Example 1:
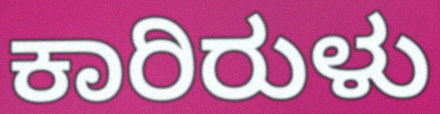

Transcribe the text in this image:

ಕಾರಿರುಳು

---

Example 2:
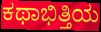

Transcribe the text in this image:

ಕಥಾಭಿತ್ತಿಯ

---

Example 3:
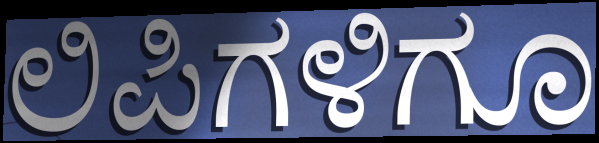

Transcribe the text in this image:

ಲಿಪಿಗಳಿಗೂ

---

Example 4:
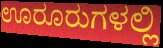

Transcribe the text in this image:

ಊರೂರುಗಳಲ್ಲಿ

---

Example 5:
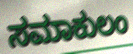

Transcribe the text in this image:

ಸಮಾಕುಲಂ